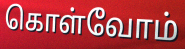
கொள்வோம்